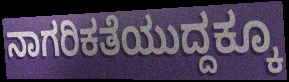
ನಾಗರಿಕತೆಯುದ್ದಕ್ಕೂ